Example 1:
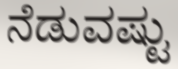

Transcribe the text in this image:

ನೆಡುವಷ್ಟು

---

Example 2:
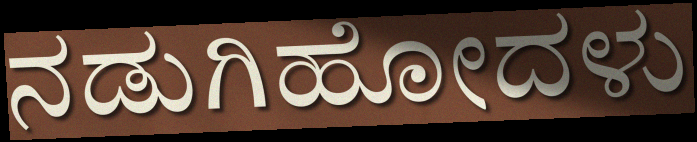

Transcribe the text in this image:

ನಡುಗಿಹೋದಳು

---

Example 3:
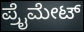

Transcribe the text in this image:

ಪ್ರೈಮೇಟ್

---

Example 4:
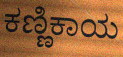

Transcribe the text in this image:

ಕಣ್ಣಿಕಾಯ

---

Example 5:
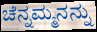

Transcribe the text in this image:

ಚೆನ್ನಮ್ಮನನ್ನು